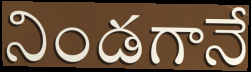
నిండగానే